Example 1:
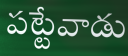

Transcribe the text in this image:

పట్టేవాడు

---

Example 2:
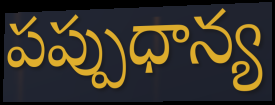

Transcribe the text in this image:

పప్పుధాన్య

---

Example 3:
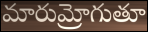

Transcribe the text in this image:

మారుమ్రోగుతూ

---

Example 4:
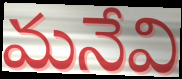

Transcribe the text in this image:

మనేవి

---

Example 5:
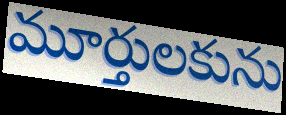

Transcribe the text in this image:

మూర్తులకును